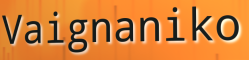
Vaignaniko